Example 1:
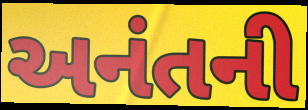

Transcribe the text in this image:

અનંતની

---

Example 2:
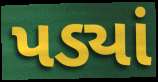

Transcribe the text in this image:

પડ્યાં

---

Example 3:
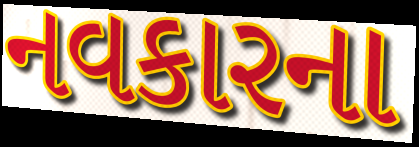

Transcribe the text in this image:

નવકારના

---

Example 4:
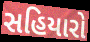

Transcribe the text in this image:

સહિયારો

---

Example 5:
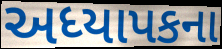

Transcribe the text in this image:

અધ્યાપકના